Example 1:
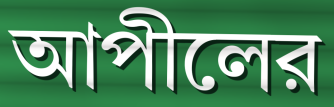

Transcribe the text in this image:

আপীলের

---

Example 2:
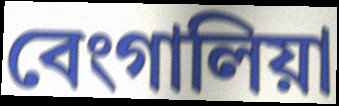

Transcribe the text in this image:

বেংগালিয়া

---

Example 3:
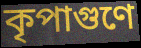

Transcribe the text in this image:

কৃপাগুণে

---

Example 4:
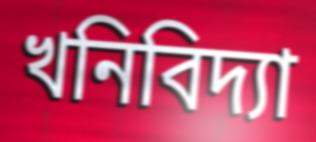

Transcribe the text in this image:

খনিবিদ্যা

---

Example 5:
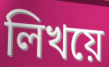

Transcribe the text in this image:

লিখয়ে